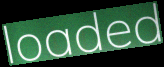
loaded